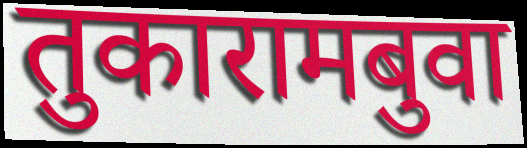
तुकारामबुवा